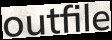
outfile